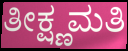
ತೀಕ್ಷ್ಣಮತಿ